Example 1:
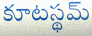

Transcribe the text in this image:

కూటస్థమ్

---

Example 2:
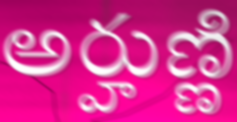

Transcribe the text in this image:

అర్హుణ్ణి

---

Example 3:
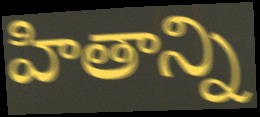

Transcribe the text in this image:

హితాన్ని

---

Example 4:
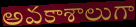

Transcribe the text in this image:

అవకాశాలుగా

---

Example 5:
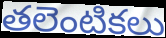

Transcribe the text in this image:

తలెంటికలు